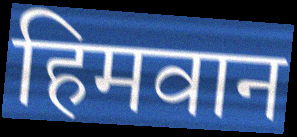
हिमवान